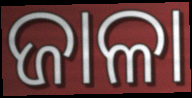
ଜାଳା